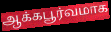
ஆக்கபூர்வமாக